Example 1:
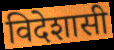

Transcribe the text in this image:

विदेशासी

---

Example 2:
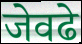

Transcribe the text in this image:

जेवढे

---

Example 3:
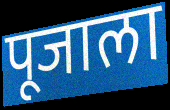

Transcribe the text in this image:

पूजाला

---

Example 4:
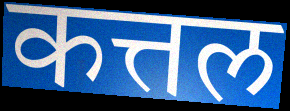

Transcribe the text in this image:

कत्तल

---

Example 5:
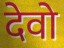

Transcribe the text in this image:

देवो